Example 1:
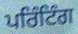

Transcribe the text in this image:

ਪਰਿੰਟਿੰਗ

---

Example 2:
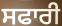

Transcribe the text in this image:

ਸਫਾਰੀ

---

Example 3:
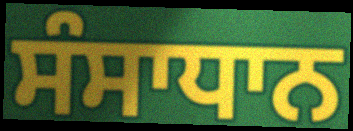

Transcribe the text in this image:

ਸੰਸਾਧਾਨ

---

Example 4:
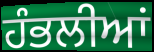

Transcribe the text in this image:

ਹੰਭਲੀਆਂ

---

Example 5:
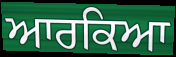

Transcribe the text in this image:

ਆਰਕਿਆ